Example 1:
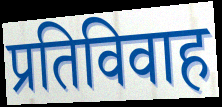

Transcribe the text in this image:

प्रतिविवाह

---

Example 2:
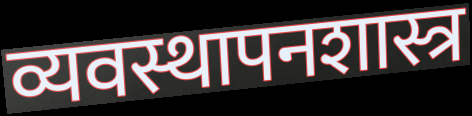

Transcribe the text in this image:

व्यवस्थापनशास्त्र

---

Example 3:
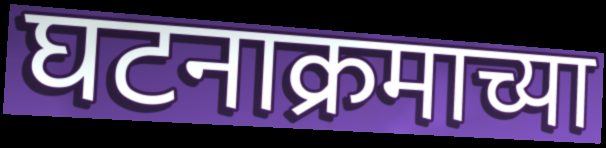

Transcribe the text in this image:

घटनाक्रमाच्या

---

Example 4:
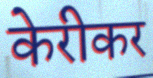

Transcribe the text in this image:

केरीकर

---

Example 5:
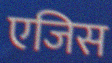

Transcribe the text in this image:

एजिस